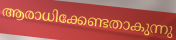
ആരാധിക്കേണ്ടതാകുന്നു